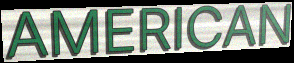
AMERICAN